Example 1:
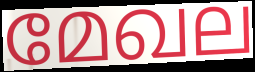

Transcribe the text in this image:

മേഖല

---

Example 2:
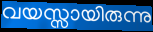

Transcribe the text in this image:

വയസ്സായിരുന്നു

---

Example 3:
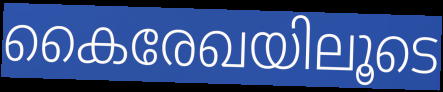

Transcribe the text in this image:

കൈരേഖയിലൂടെ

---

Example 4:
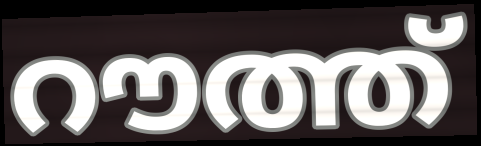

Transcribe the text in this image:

റൗത്ത്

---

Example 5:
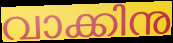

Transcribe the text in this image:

വാക്കിനു